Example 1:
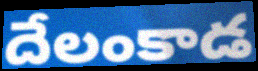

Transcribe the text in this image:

దేలంకాడ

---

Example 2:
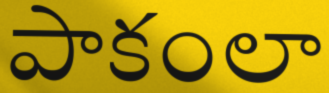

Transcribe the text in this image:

పాకంలా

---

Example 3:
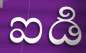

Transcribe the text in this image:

ఐడి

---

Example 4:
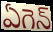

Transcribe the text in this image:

ఏగెన్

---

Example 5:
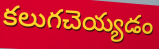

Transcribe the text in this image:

కలుగచెయ్యడం